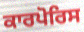
ਕਾਰਪੋਰਿਸ